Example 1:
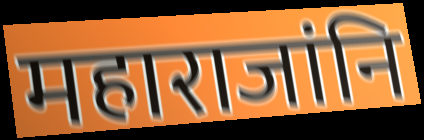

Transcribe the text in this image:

महाराजांनि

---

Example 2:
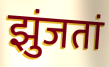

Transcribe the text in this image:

झुंजतां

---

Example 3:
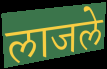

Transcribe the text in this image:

लाजले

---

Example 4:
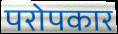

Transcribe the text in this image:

परोपकार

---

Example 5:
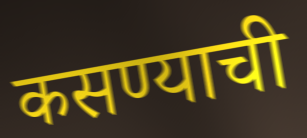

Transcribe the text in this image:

कसण्याची